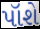
પૉશે